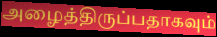
அழைத்திருப்பதாகவும்